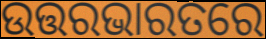
ଉତ୍ତରଭାରତରେ